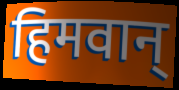
हिमवान्